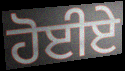
ਹੋਈਏ